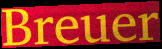
Breuer